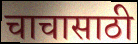
चाचासाठी